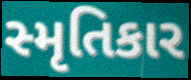
સ્મૃતિકાર